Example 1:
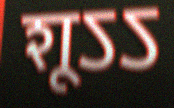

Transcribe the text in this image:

शूऽऽ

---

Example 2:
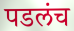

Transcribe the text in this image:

पडलंच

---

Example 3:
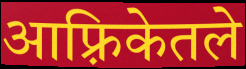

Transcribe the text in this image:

आफ़्रिकेतले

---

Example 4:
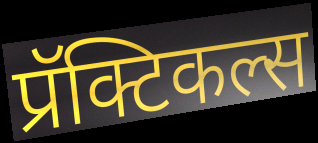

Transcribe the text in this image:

प्रॅक्टिकल्स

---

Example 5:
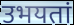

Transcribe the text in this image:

उभयतां